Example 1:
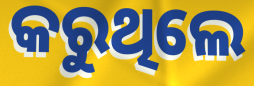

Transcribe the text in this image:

କରୁଥିଲେ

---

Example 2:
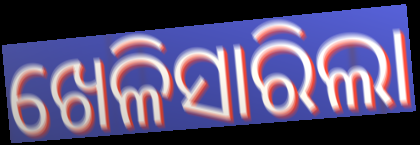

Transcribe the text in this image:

ଖେଳିସାରିଲା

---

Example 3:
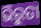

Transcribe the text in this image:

ଭିରୁତା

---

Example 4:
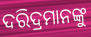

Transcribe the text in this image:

ଦରିଦ୍ରମାନଙ୍କୁ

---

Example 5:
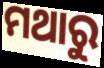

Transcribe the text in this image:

ମଥାରୁ